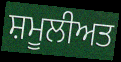
ਸ਼ਮੂਲੀਅਤ